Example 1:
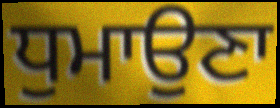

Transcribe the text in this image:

ਧੁਮਾਉਣਾ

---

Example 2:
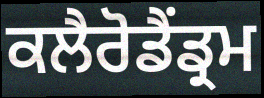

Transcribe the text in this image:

ਕਲੈਰੋਡੈਂਡ੍ਰਮ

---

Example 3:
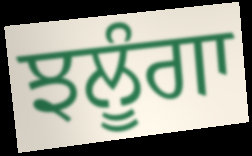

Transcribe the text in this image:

ਝਲੂੰਗਾ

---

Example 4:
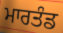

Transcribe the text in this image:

ਮਾਰਤੰਡ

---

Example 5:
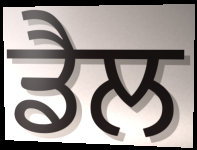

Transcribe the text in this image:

ਡੈਲ